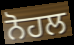
ਨੋਹਲ